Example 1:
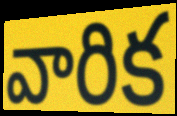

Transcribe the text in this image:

వారిక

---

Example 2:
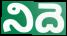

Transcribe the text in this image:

నిదె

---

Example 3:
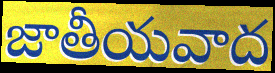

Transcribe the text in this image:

జాతీయవాద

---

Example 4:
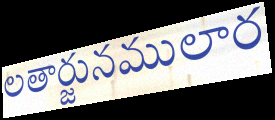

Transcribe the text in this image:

లతార్జునములార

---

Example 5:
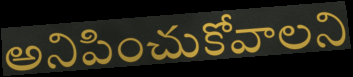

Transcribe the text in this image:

అనిపించుకోవాలని